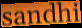
sandhi